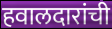
हवालदारांची